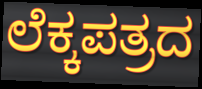
ಲೆಕ್ಕಪತ್ರದ